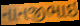
નાનજીભાઇ